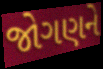
જોગણને